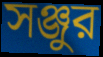
সঞ্জুর